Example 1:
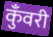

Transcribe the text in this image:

कुँवरी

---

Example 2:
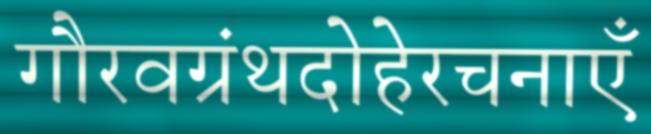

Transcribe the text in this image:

गौरवग्रंथदोहेरचनाएँ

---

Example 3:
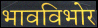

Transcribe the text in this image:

भावविभोर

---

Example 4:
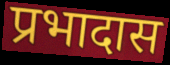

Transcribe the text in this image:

प्रभादास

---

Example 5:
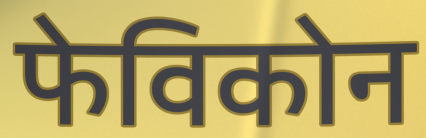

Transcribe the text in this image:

फेविकोन